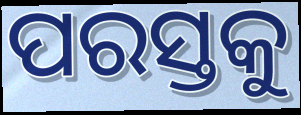
ପରସ୍ତକୁ